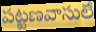
పట్టణవాసులే